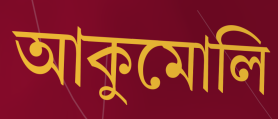
আকুমোলি